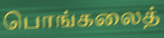
பொங்கலைத்